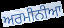
ਅਰਮੀਨੀਆ